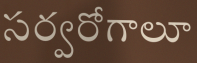
సర్వరోగాలూ